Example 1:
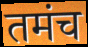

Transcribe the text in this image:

तमंच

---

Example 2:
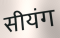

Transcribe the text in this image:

सीयंग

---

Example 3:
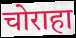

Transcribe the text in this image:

चोराहा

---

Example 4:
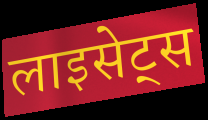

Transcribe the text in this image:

लाइसेट्स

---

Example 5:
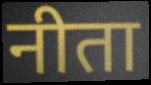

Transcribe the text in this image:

नीता